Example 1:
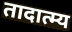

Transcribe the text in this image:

तादात्म्य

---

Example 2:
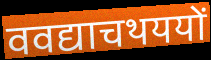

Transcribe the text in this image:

ववद्याचथययों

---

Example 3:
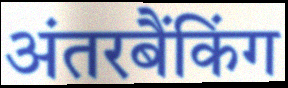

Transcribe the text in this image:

अंतरबैंकिंग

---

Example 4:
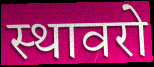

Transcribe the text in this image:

स्थावरो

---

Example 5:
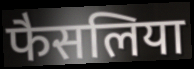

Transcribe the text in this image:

फैसलिया